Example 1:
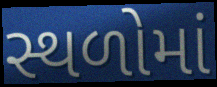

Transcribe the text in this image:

સ્થળોમાં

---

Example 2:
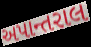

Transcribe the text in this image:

અપાન્તરાલ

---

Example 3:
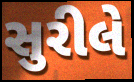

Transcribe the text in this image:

સુરીલે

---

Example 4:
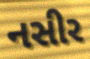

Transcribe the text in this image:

નસીર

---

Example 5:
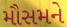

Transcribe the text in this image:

મૌસમને